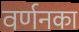
वर्णनका